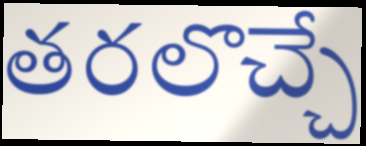
తరలొచ్చే